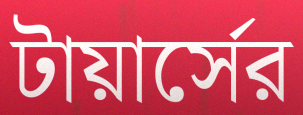
টায়ার্সের